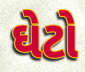
ઘેટો